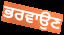
ਭਰਵਾਉਣ